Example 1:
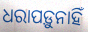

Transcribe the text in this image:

ଧରାପଡ଼ୁନାହିଁ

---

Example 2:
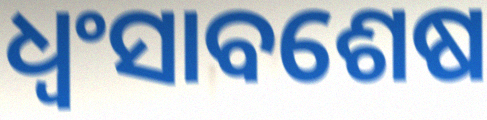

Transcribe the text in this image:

ଧ୍ଵଂସାବଶେଷ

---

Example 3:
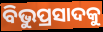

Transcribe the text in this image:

ବିଭୁପ୍ରସାଦକୁ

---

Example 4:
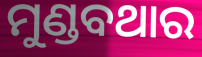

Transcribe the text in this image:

ମୁଣ୍ଡବଥାର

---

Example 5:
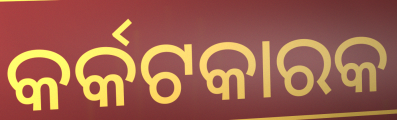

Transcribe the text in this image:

କର୍କଟକାରକ